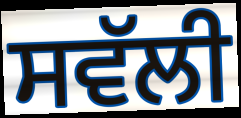
ਸਵੱਲੀ